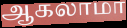
ஆகலாமா